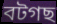
বটগছ